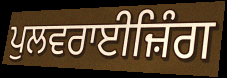
ਪੁਲਵਰਾਈਜ਼ਿੰਗ